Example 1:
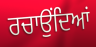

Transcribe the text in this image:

ਰਚਾਉਂਦਿਆਂ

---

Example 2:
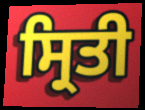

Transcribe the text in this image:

ਸ੍ਰਿਤੀ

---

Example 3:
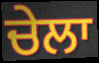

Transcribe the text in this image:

ਚੇਲਾ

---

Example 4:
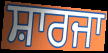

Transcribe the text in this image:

ਸ਼ਾਰਜਾ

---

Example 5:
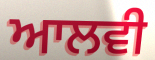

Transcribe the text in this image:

ਆਲਵੀ